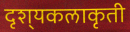
दृश्यकलाकृती